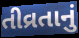
તીવ્રતાનું